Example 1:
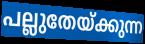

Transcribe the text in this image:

പല്ലുതേയ്ക്കുന്ന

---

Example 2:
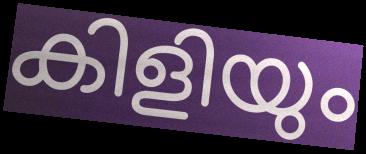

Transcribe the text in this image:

കിളിയും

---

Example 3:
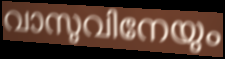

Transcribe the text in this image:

വാസുവിനേയും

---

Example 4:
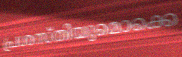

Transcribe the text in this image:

പ്രശസ്തിയുമൊക്കെ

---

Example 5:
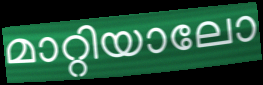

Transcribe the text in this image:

മാറ്റിയാലോ